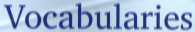
Vocabularies